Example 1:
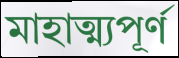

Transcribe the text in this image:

মাহাত্ম্যপূর্ণ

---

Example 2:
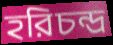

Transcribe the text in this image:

হরিচন্দ্র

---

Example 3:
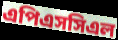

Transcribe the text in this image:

এপিএসসিএল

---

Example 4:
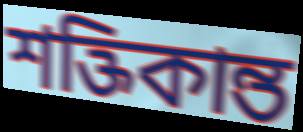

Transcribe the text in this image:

শক্তিকান্ত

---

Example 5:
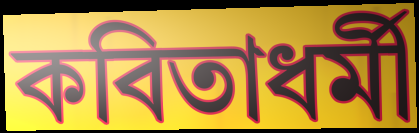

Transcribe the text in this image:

কবিতাধর্মী